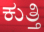
ಕುತ್ತಿ